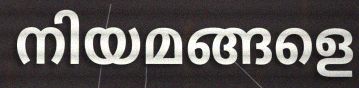
നിയമങ്ങളെ